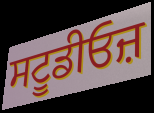
ਸਟੂਡੀਓਜ਼